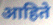
आहिते